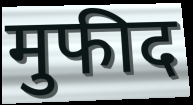
मुफीद